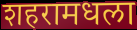
शहरामधला